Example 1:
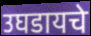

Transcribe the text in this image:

उघडायचे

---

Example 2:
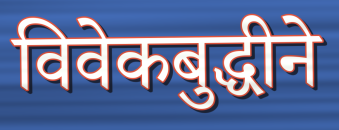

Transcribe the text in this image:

विवेकबुद्धीने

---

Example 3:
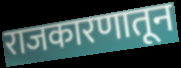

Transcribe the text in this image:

राजकारणातून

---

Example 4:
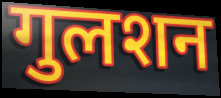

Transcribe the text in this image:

गुलशन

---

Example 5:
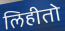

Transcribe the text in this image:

लिहीतो